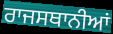
ਰਾਜਸਥਾਨੀਆਂ